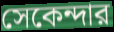
সেকেন্দার